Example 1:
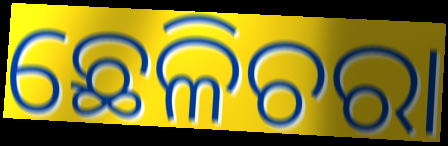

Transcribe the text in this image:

ଛେଳିଚରା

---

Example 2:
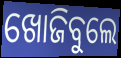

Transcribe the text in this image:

ଖୋଜିବୁଲେ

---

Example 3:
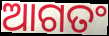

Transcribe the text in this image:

ଆଗତଂ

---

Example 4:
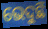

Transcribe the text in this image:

ଭେଦୁଛି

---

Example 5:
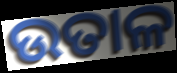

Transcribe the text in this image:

ଉତାଳ